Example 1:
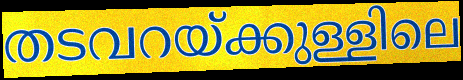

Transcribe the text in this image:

തടവറയ്ക്കുള്ളിലെ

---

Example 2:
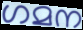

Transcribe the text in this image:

ഗമന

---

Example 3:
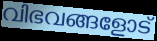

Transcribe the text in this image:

വിഭവങ്ങളോട്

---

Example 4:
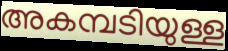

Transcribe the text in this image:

അകമ്പടിയുള്ള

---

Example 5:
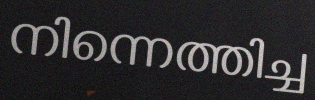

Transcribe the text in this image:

നിന്നെത്തിച്ച